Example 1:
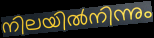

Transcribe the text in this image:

നിലയിൽനിന്നും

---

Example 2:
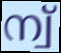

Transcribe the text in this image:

ന്വ്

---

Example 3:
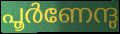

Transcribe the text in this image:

പൂർണേന്ദു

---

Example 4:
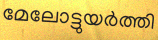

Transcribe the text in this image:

മേലോട്ടുയർത്തി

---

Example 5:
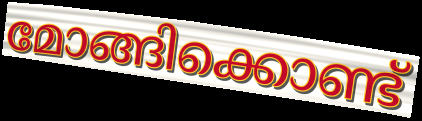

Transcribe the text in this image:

മോങ്ങിക്കൊണ്ട്